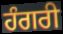
ਹੰਗਰੀ